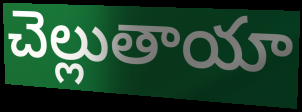
చెల్లుతాయా